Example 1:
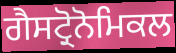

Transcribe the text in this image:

ਗੈਸਟ੍ਰੋਨੋਮਿਕਲ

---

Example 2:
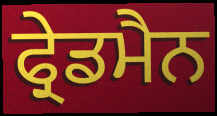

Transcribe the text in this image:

ਫ੍ਰੇਡਮੈਨ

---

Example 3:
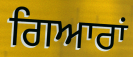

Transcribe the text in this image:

ਗਿਆਰਾਂ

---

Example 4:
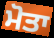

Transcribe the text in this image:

ਮੋਤਾ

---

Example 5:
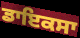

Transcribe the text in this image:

ਡਾਇਕਸਾ